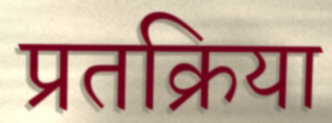
प्रतक्रिया